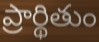
ప్రార్థితుం